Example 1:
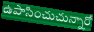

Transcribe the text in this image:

ఉపాసించుచున్నారో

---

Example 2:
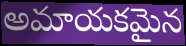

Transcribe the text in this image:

అమాయకమైన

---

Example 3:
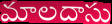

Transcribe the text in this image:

మాలదాసు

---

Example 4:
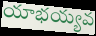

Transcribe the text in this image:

యాభయ్యవ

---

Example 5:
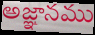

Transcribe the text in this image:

అజ్ఞానము